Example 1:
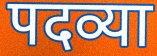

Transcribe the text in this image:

पदव्या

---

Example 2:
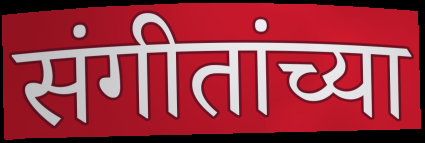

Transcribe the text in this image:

संगीतांच्या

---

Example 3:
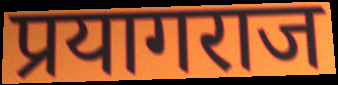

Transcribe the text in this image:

प्रयागराज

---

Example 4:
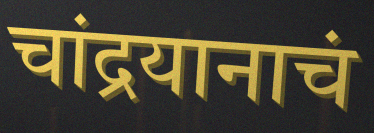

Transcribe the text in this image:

चांद्रयानाचं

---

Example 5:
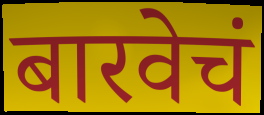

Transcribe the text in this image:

बारवेचं